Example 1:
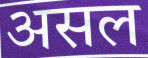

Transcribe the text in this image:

असल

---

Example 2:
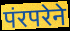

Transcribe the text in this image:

पंरपरेने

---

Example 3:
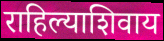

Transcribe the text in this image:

राहिल्याशिवाय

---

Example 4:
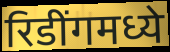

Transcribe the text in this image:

रिडींगमध्ये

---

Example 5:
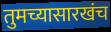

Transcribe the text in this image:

तुमच्यासारखंच